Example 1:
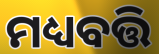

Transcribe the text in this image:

ମଧ୍ୟବତ୍ତି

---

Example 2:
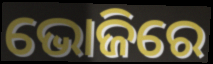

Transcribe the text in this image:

ଭୋଜିରେ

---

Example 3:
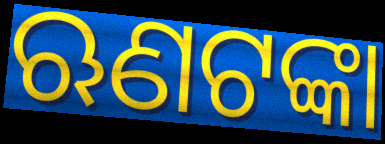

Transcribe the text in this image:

ଋଣଟଙ୍କା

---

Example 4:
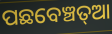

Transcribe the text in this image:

ପଛବେଞ୍ଚତ୍ଆ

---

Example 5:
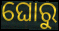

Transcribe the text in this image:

ଘୋରୁ